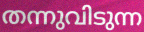
തന്നുവിടുന്ന